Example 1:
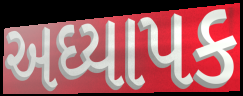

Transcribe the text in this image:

અઘ્યાપક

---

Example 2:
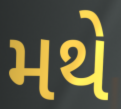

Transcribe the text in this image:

મથે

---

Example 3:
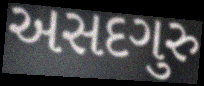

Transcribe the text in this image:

અસદગુરુ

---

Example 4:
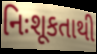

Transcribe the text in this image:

નિઃશૂકતાથી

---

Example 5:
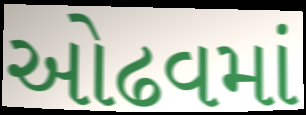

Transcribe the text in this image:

ઓઢવમાં